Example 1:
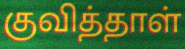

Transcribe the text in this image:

குவித்தாள்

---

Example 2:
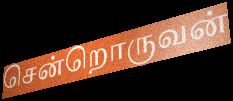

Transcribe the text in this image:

சென்றொருவன்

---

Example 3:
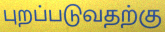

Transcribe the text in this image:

புறப்படுவதற்கு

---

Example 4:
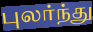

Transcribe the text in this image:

புலர்ந்து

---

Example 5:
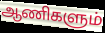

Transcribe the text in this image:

ஆணிகளும்